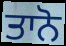
ਤਾਨੋ